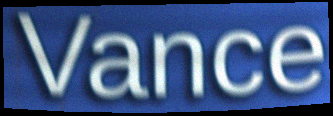
Vance